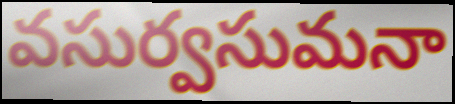
వసుర్వసుమనా